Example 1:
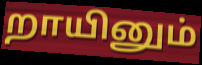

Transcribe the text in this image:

றாயினும்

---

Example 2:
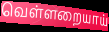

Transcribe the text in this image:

வெள்ளறையாய்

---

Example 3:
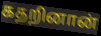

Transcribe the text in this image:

கதறினான்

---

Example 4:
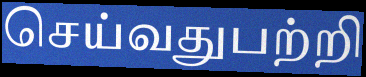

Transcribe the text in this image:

செய்வதுபற்றி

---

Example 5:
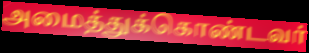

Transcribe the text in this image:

அமைத்துக்கொண்டவர்